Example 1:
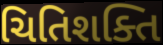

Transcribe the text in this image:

ચિતિશક્તિ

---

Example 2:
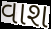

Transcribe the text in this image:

વાશ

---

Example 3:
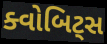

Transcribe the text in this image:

ક્વોબિટ્સ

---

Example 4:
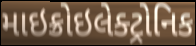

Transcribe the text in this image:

માઇક્રોઇલેક્ટ્રોનિક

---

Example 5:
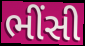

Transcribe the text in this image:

ભીંસી